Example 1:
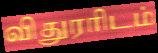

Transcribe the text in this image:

விதுரரிடம்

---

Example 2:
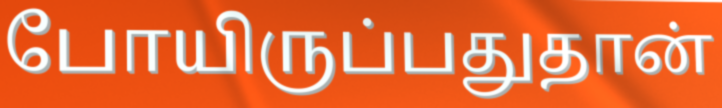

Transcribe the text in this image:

போயிருப்பதுதான்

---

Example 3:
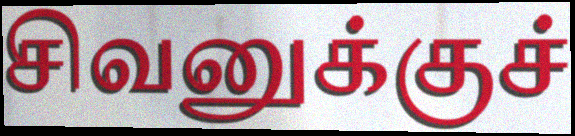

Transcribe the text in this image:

சிவனுக்குச்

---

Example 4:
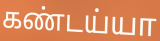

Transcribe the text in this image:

கண்டய்யா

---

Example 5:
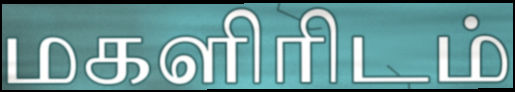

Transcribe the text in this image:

மகளிரிடம்